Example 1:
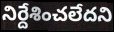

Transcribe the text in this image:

నిర్దేశించలేదని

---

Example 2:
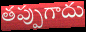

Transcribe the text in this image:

తప్పుగాదు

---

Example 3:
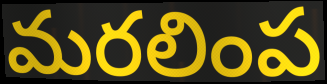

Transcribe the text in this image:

మరలింప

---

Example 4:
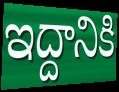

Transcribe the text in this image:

ఇద్దానికి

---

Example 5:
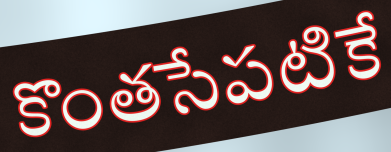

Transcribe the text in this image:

కొంతసేపటికే